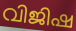
വിജിഷ